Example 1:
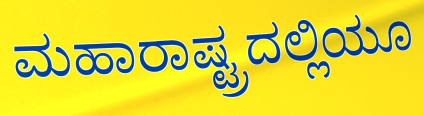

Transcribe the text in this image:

ಮಹಾರಾಷ್ಟ್ರದಲ್ಲಿಯೂ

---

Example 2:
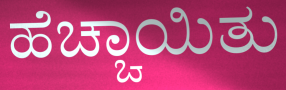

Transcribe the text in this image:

ಹೆಚ್ಚಾಯಿತು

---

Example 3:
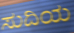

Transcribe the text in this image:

ಸುದಿಯ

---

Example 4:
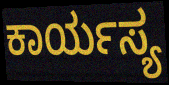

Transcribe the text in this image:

ಕಾರ್ಯಸ್ಯ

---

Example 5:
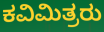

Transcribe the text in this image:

ಕವಿಮಿತ್ರರು